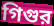
গিগুর